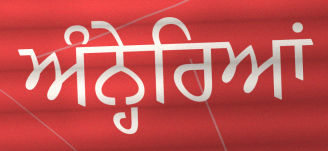
ਅੰਨ੍ਹੇਰਿਆਂ